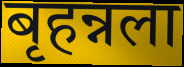
बृहन्नला